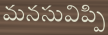
మనసువిప్పి